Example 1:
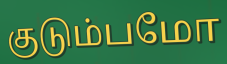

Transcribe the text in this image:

குடும்பமோ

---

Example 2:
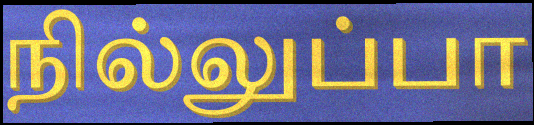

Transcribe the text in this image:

நில்லுப்பா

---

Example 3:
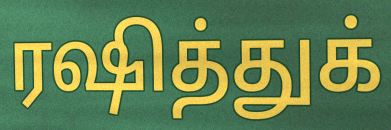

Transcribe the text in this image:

ரஷித்துக்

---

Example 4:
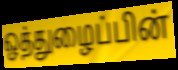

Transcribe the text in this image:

ஒத்துழைப்பின்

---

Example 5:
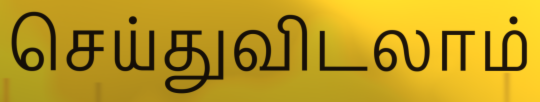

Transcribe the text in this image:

செய்துவிடலாம்